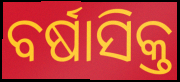
ବର୍ଷାସିକ୍ତ